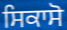
ਸਿਕਾਸੋ